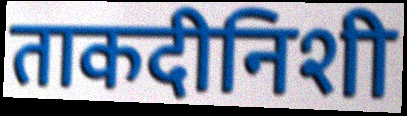
ताकदीनिशी